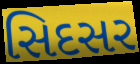
સિદસર